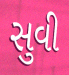
સુવી